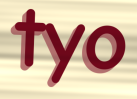
tyo